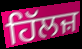
ਹਿੱਲਜ਼